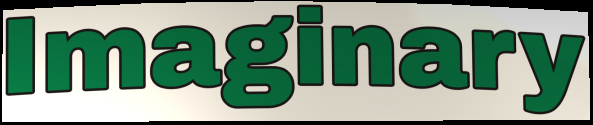
Imaginary